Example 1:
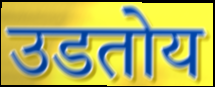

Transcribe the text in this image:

उडतोय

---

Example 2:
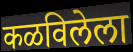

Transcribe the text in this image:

कळविलेला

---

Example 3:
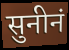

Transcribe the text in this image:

सुनीनं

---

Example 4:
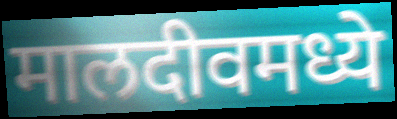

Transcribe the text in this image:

मालदीवमध्ये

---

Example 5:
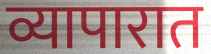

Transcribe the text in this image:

व्यापारात